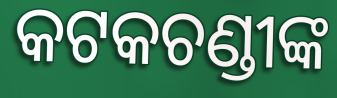
କଟକଚଣ୍ଡୀଙ୍କ